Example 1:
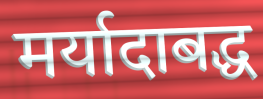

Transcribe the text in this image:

मर्यादाबद्ध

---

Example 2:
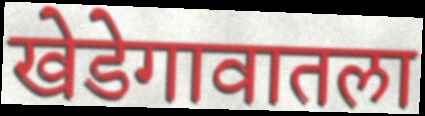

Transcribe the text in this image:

खेडेगावातला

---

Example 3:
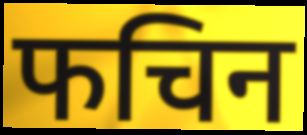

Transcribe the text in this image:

फचिन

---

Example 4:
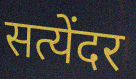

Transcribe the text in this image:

सत्येंदर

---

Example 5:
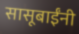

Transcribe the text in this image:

सासूबाईंनी